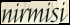
nirmisi